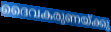
ദൈവകരുണയ്ക്കു